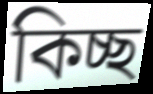
কিচ্ছ